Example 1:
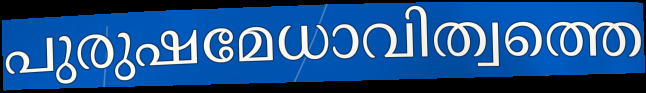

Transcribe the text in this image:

പുരുഷമേധാവിത്വത്തെ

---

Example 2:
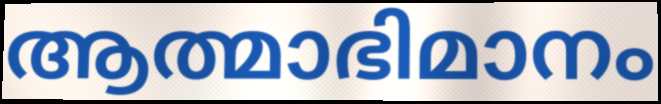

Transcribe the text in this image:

ആത്മാഭിമാനം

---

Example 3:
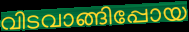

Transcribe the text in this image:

വിടവാങ്ങിപ്പോയ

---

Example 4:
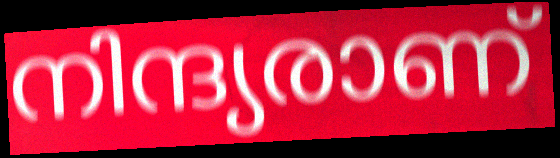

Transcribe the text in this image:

നിന്ദ്യരാണ്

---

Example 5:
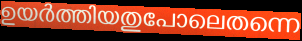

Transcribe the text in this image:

ഉയർത്തിയതുപോലെതന്നെ